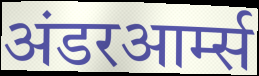
अंडरआर्म्‍स